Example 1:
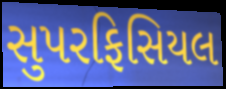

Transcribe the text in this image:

સુપરફિસિયલ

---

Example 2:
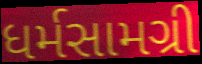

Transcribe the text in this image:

ધર્મસામગ્રી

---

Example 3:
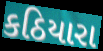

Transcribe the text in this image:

કઠિયારા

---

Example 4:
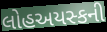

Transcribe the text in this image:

લોહઅયસ્કની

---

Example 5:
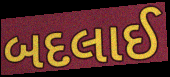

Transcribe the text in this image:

બદલાઈ